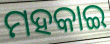
ମହକାଇ